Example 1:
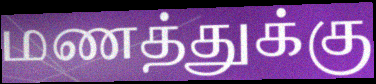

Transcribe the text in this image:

மணத்துக்கு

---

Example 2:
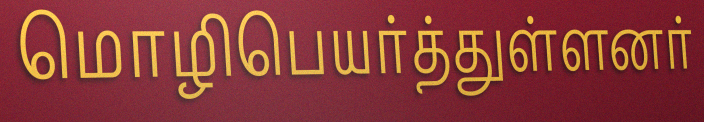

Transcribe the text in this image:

மொழிபெயர்த்துள்ளனர்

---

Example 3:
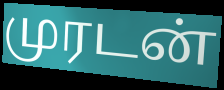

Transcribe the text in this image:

முரடன்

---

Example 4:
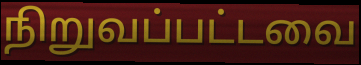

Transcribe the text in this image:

நிறுவப்பட்டவை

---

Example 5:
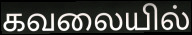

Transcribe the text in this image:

கவலையில்